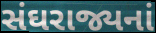
સંઘરાજ્યનાં